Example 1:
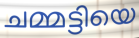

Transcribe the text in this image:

ചമ്മട്ടിയെ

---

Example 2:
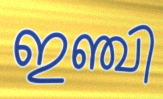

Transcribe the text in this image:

ഇഞ്ചി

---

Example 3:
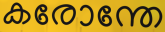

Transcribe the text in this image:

കരോന്തേ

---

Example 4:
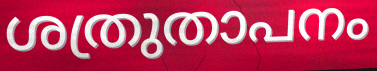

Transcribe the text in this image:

ശത്രുതാപനം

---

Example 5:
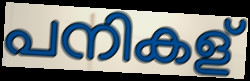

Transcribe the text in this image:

പനികള്